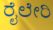
ರೈಲೇರಿ